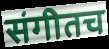
संगीतच